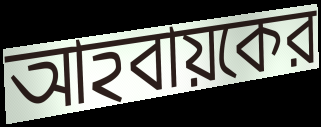
আহবায়কের